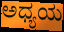
ಅಧ್ಯಯ